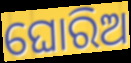
ଘୋରିଅ